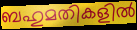
ബഹുമതികളിൽ